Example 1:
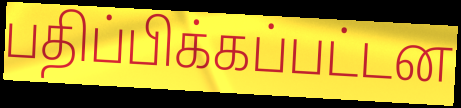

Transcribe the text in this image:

பதிப்பிக்கப்பட்டன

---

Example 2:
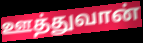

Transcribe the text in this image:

ஊத்துவான்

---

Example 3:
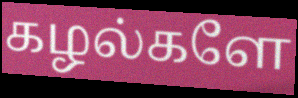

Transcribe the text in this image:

கழல்களே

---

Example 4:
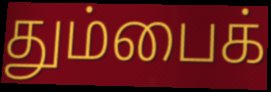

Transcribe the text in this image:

தும்பைக்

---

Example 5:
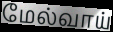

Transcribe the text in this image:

மேல்வாய்